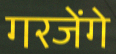
गरजेंगे